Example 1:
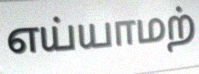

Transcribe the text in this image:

எய்யாமற்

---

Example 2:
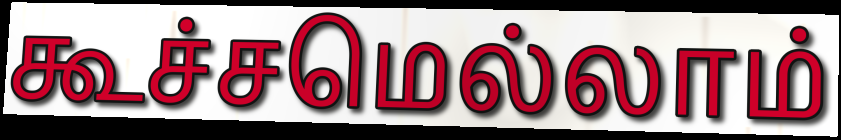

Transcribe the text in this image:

கூச்சமெல்லாம்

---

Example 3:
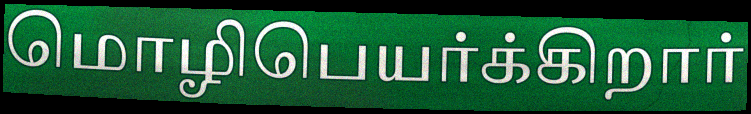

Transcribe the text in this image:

மொழிபெயர்க்கிறார்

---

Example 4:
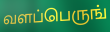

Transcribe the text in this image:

வளப்பெருங்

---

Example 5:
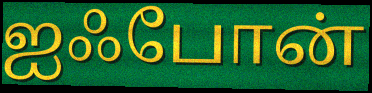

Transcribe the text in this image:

ஐஃபோன்